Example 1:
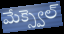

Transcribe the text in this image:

మేక్స్వెల్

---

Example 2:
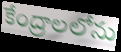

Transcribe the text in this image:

కేంద్రాలలోను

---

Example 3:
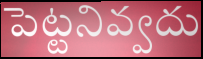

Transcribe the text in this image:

పెట్టనివ్వదు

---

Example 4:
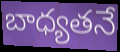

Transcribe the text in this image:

బాధ్యతనే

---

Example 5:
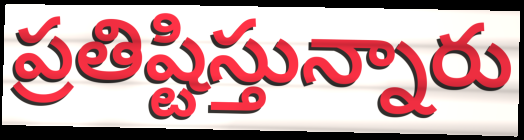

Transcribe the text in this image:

ప్రతిష్టిస్తున్నారు